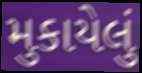
મુકાયેલું